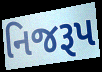
નિજરૂપ